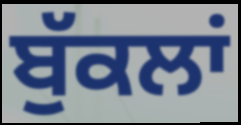
ਬੁੱਕਲਾਂ